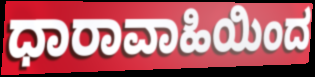
ಧಾರಾವಾಹಿಯಿಂದ